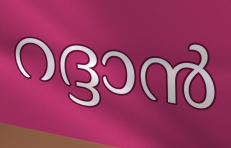
റദ്ദാൻ